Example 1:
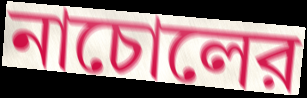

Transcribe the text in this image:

নাচোলের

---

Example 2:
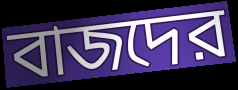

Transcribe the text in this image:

বাজদের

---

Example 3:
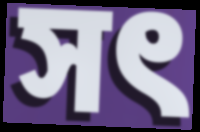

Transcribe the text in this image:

সৎ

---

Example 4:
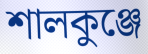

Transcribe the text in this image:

শালকুঞ্জে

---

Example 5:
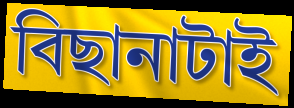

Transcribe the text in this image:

বিছানাটাই